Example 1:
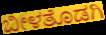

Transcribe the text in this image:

ಬೀಳತೊಡಗಿ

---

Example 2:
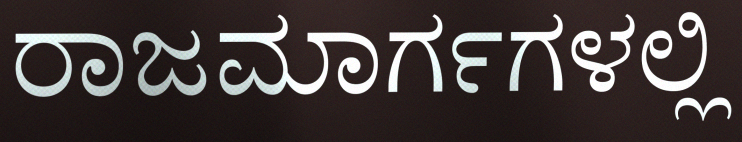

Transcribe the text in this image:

ರಾಜಮಾರ್ಗಗಳಲ್ಲಿ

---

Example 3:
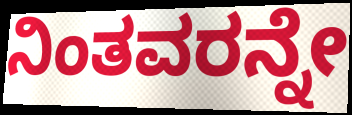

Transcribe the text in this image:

ನಿಂತವರನ್ನೇ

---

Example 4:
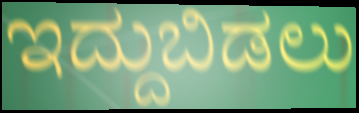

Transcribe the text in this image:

ಇದ್ದುಬಿಡಲು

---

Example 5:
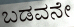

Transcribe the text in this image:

ಬಡವನೇ